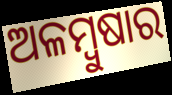
ଅଳମ୍ବୁଷାର